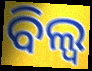
ବିଲ୍ଵ